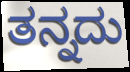
ತನ್ನದು